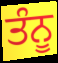
ਤੰਨੂ